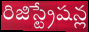
రిజిస్ట్రేషన్ల